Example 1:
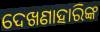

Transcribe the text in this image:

ଦେଖଣାହାରିଙ୍କ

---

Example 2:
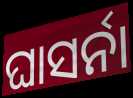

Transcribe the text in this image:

ଘାସର୍ନା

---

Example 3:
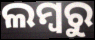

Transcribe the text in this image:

ଲମ୍ବରୁ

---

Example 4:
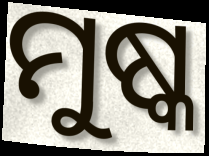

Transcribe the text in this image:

ମୁଷ୍କ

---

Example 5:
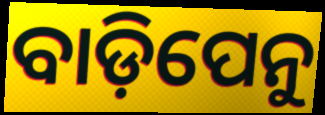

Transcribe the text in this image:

ବାଡ଼ିପେନୁ